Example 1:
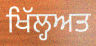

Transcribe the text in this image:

ਖਿੱਲ੍ਹਅਤ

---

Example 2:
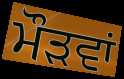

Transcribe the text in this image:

ਮੌੜਵਾਂ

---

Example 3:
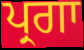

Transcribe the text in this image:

ਪ੍ਰਗਾ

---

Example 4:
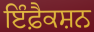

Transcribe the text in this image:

ਇੰਫ਼ੈਕਸ਼ਨ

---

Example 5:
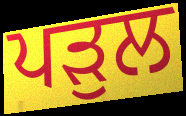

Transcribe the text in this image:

ਪੜੁਲ